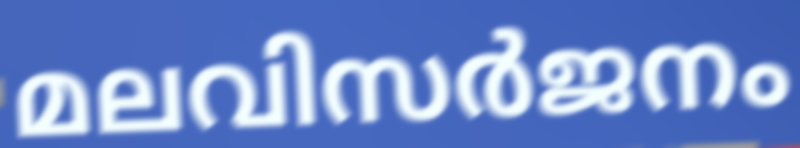
മലവിസർജനം